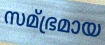
സമ്ഭ്രമായ